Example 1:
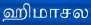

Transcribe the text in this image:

ஹிமாசல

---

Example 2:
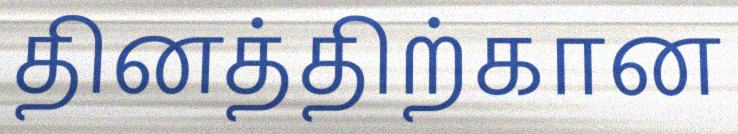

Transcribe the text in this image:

தினத்திற்கான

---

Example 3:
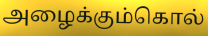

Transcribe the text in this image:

அழைக்கும்கொல்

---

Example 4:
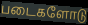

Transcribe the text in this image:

படைகளோடு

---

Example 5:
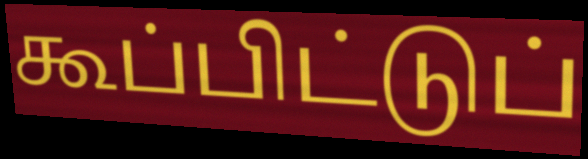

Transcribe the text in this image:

கூப்பிட்டுப்